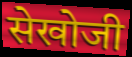
सेखोजी